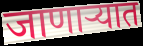
जाणाऱ्यात